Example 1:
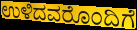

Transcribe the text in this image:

ಉಳಿದವರೊಂದಿಗೆ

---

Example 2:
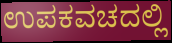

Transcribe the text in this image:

ಉಪಕವಚದಲ್ಲಿ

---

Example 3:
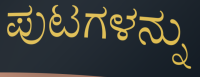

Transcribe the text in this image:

ಪುಟಗಳನ್ನು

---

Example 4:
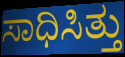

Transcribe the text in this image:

ಸಾಧಿಸಿತ್ತು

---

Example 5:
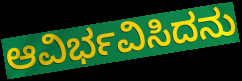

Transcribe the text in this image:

ಆವಿರ್ಭವಿಸಿದನು